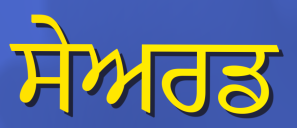
ਸੇਅਰਡ